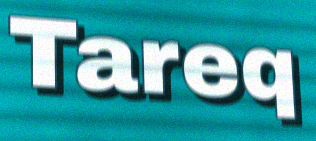
Tareq